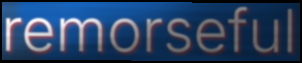
remorseful